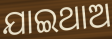
ଯାଇଥାଅ